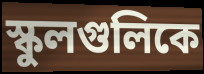
স্কুলগুলিকে